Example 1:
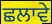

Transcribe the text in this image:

ਛਲਾਵੇ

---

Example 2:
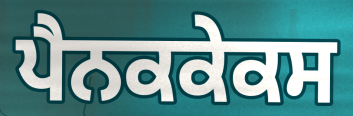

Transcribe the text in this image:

ਪੈਨਕਕੇਕਸ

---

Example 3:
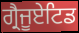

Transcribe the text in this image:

ਗ੍ਰੈਜੂਏਟਿਡ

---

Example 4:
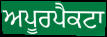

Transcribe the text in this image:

ਅਪੂਰਪੈਕਟਾ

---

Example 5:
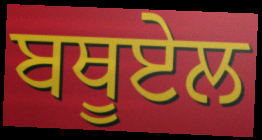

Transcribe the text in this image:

ਬਥੂਏਲ